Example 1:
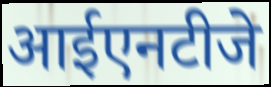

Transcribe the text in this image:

आईएनटीजे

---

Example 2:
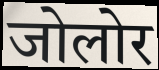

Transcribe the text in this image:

जोलोर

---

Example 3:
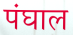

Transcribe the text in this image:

पंघाल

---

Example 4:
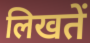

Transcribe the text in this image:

लिखतें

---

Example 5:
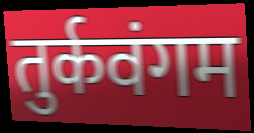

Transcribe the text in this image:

तुर्कवंगम